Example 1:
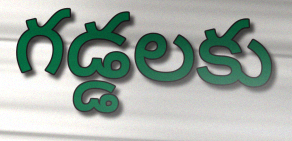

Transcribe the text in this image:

గడ్డలకు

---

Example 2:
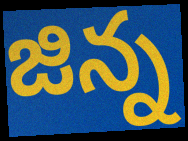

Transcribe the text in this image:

జిన్న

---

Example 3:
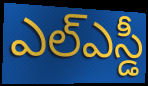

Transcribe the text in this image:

ఎల్ఎస్డీ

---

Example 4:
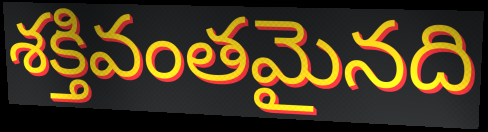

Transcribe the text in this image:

శక్తివంతమైనది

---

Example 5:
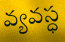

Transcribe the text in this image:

వ్యవస్ధ